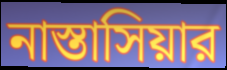
নাস্তাসিয়ার